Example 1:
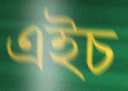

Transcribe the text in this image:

এইচ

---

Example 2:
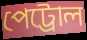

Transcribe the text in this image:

পেট্ৰোল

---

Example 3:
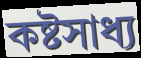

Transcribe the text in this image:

কষ্টসাধ্য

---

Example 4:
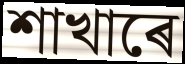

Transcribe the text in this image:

শাখাৰে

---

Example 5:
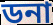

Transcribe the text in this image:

ডনা